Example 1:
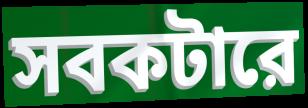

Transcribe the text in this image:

সবকটারে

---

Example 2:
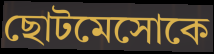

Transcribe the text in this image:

ছোটমেসোকে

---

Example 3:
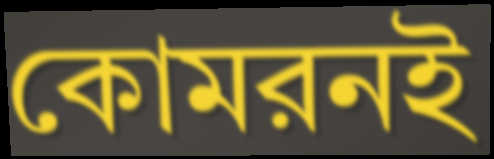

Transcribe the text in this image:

কোমরনই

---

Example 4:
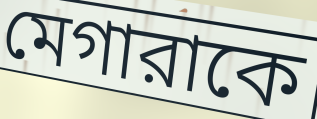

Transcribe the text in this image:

মেগারাকে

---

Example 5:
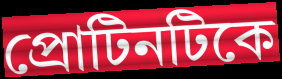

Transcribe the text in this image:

প্রোটিনটিকে